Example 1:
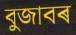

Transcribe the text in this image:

বুজাবৰ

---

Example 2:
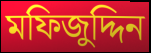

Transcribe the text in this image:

মফিজুদ্দিন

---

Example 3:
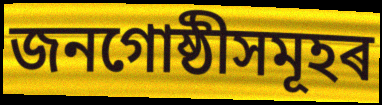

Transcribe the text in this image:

জনগোষ্ঠীসমূহৰ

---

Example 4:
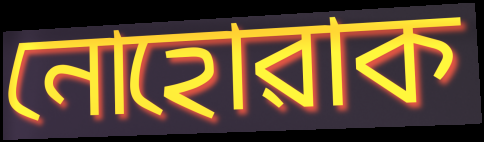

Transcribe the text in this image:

নোহোৱাক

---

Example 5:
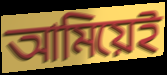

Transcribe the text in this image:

আমিয়েই